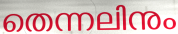
തെന്നലിനും